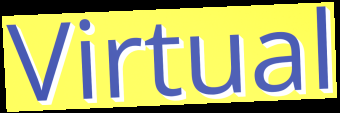
Virtual